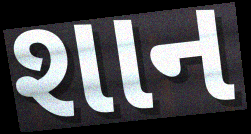
શાન